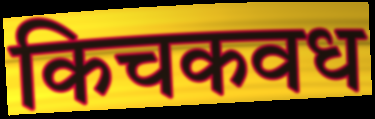
किचकवध